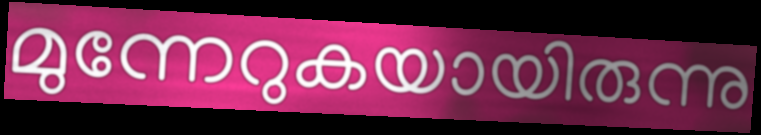
മുന്നേറുകയായിരുന്നു